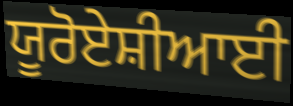
ਯੂਰੋਏਸ਼ੀਆਈ